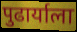
पुढार्याला